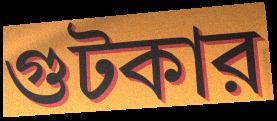
গুটকার